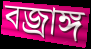
বজ্রাঙ্গ